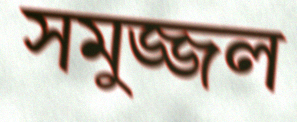
সমুজ্জল